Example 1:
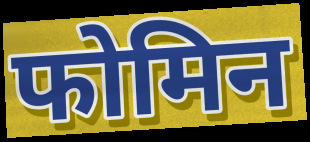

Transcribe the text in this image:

फोमिन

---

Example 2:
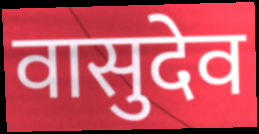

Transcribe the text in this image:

वासुदेव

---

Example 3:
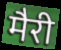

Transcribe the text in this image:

मैरी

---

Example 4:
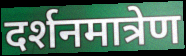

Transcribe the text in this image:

दर्शनमात्रेण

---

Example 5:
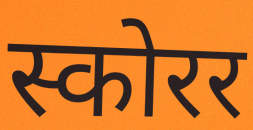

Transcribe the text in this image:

स्कोरर